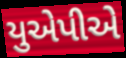
યુએપીએ